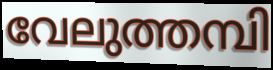
വേലുത്തമ്പി